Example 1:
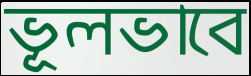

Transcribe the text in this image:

ভূলভাবে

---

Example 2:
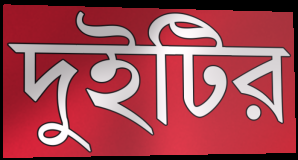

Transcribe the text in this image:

দুইটির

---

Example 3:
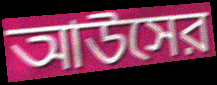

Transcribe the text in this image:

আউসের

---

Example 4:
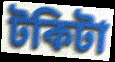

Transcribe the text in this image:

টকিটা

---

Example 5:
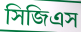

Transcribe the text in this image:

সিজিএস